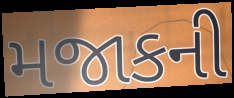
મજાકની